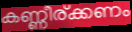
കണ്ണീര്ക്കണം